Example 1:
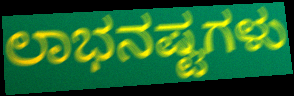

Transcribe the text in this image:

ಲಾಭನಷ್ಟಗಳು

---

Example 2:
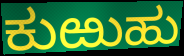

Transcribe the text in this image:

ಕುಱುಹು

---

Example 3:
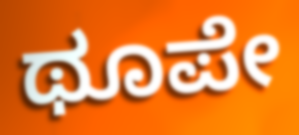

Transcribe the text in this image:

ಥೂಪೇ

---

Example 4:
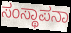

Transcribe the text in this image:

ಸಂಸ್ಥಾಪನಾ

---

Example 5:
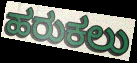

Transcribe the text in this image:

ಹರುಕಲು